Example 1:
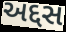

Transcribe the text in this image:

અદ્દસ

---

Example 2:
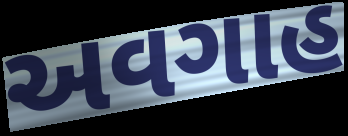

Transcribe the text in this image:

અવગાહ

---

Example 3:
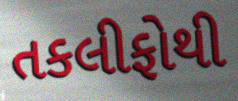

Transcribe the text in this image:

તકલીફોથી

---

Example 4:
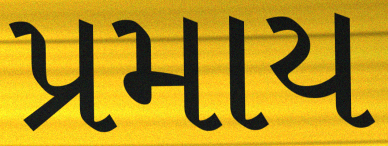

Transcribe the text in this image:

પ્રમાય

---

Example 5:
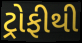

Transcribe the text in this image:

ટ્રોફીથી